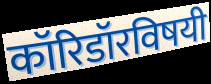
कॉरिडॉरविषयी